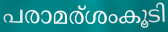
പരാമര്ശംകൂടി